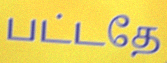
பட்டதே